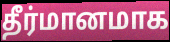
தீர்மானமாக